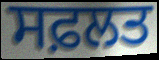
ਸਫ਼ਲਤ